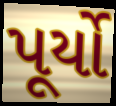
પૂર્યો